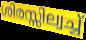
ശിരസ്സില്വച്ച്